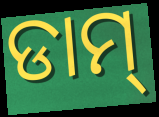
ଡାମ୍